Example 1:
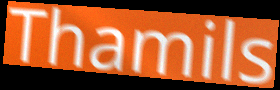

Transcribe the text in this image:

Thamils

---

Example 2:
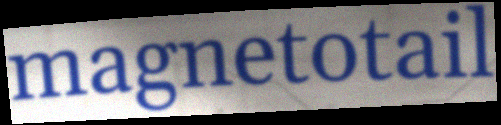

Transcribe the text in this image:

magnetotail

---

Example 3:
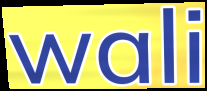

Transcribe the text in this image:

wali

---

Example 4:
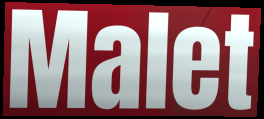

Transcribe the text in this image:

Malet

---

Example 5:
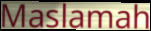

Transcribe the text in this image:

Maslamah